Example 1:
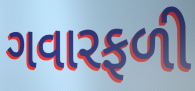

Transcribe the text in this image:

ગવારફળી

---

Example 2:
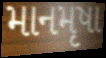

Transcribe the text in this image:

માનમૃષા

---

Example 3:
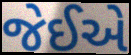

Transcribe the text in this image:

જેઈએ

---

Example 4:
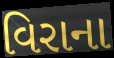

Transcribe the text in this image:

વિરાના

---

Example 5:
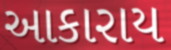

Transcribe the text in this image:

આકારાય